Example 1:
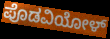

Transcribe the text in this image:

ಪೊಡವಿಯೋಳ್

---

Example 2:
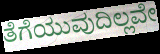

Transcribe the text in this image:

ತೆಗೆಯುವುದಿಲ್ಲವೇ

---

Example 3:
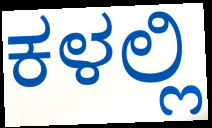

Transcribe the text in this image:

ಕಳಲ್ಲಿ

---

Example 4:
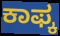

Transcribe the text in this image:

ಕಾಫ್ಕ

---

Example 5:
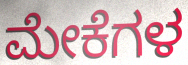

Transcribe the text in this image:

ಮೇಕೆಗಳ